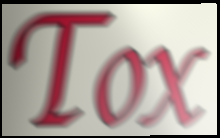
Tox